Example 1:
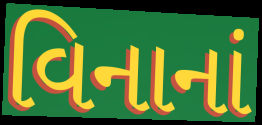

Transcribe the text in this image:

વિનાનાં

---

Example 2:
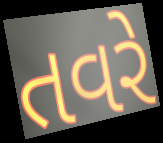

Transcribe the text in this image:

તવરે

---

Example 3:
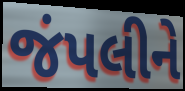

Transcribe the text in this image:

જંપલીને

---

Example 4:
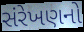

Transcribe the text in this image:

સંરેખણનો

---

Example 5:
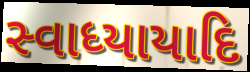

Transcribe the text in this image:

સ્વાધ્યાયાદિ